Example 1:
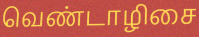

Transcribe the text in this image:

வெண்டாழிசை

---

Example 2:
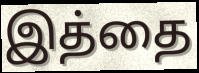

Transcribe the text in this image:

இத்தை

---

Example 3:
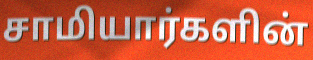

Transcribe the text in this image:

சாமியார்களின்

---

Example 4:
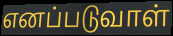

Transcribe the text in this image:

எனப்படுவாள்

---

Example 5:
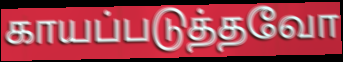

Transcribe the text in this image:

காயப்படுத்தவோ